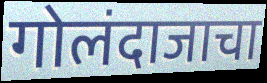
गोलंदाजाचा